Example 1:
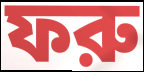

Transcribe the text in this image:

ফরু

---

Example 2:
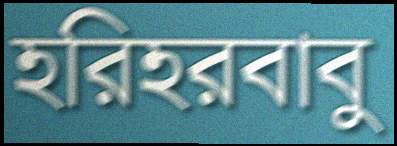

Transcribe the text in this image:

হরিহরবাবু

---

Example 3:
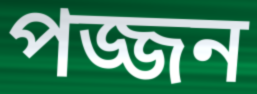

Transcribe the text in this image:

পজ্জন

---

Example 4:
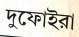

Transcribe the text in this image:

দুফোইরা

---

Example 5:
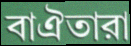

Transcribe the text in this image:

বাঐতারা